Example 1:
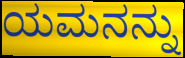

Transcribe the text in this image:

ಯಮನನ್ನು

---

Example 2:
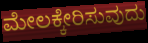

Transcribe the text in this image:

ಮೇಲಕ್ಕೇರಿಸುವುದು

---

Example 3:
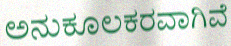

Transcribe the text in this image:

ಅನುಕೂಲಕರವಾಗಿವೆ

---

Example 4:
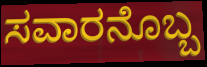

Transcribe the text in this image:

ಸವಾರನೊಬ್ಬ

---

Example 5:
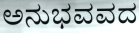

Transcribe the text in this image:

ಅನುಭವವದ